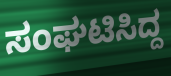
ಸಂಘಟಿಸಿದ್ದ